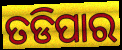
ତଡିପାର